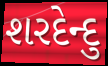
શરદેન્દુ